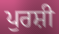
ਪੁਰਸ਼ੀ